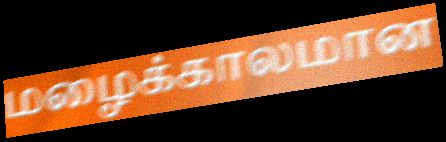
மழைக்காலமான